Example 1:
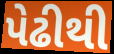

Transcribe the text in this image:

પેઢીથી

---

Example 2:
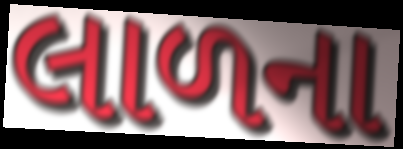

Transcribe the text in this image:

લાળના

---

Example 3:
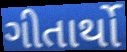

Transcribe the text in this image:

ગીતાર્થો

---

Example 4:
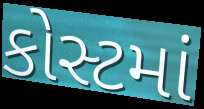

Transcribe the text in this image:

કોસ્ટમાં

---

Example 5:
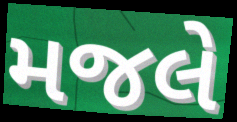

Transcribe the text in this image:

મજલે